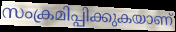
സംക്രമിപ്പിക്കുകയാണ്